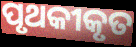
ପୃଥକୀକୃତ